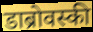
डाब्रोवस्की